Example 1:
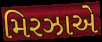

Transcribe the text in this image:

મિરઝાએ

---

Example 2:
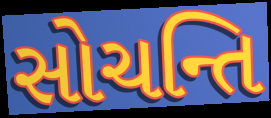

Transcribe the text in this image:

સોચન્તિ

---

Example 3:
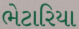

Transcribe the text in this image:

ભેટારિયા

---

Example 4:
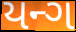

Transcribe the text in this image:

યન્ગ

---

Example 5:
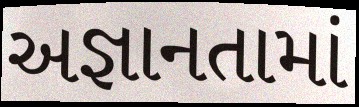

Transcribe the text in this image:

અજ્ઞાનતામાં